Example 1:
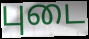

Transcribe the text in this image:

புடை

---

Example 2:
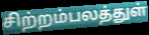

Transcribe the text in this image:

சிற்றம்பலத்துள்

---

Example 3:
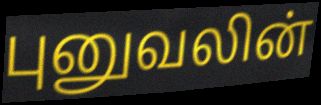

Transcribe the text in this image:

புனுவலின்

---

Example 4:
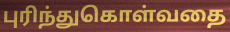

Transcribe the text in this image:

புரிந்துகொள்வதை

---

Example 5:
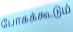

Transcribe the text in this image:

போகக்கூடும்